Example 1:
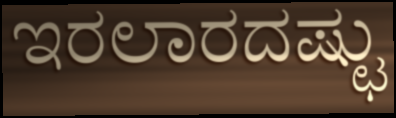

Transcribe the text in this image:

ಇರಲಾರದಷ್ಟು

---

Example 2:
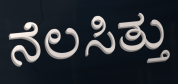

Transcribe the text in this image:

ನೆಲಸಿತ್ತು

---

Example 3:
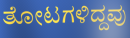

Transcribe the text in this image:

ತೋಟಗಳಿದ್ದವು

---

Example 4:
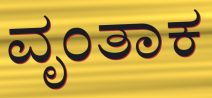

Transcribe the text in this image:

ವೃಂತಾಕ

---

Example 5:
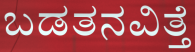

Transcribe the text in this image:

ಬಡತನವಿತ್ತೆ